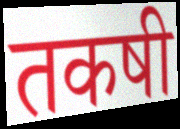
तकषी